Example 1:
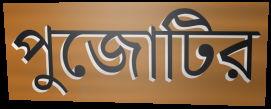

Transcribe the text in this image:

পুজোটির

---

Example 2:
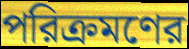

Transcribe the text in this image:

পরিক্রমণের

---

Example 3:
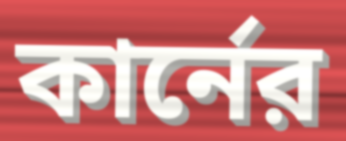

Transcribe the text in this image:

কার্নের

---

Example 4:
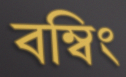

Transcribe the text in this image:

বম্বিং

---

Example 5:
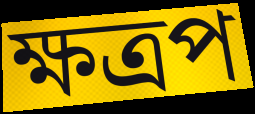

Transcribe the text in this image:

ক্ষত্রপ